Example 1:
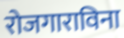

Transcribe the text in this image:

रोजगाराविना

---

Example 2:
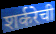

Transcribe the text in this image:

शर्करेची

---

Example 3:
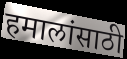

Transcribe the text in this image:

हमालांसाठी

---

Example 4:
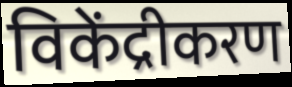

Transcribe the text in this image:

विकेंद्रीकरण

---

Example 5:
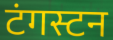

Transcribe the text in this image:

टंगस्टन